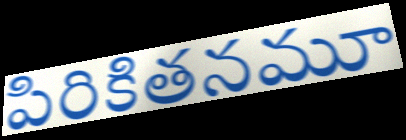
పిరికితనమూ